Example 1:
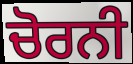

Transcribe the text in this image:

ਚੋਰਨੀ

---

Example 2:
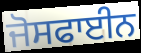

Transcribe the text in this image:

ਜੋਸਫਾਈਨ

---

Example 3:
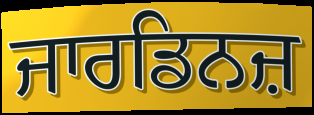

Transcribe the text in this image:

ਜਾਰਡਿਨਜ਼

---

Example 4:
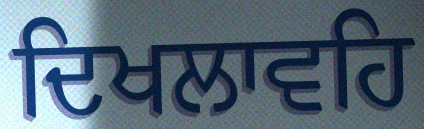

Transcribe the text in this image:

ਦਿਖਲਾਵਹਿ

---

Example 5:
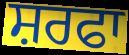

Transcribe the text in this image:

ਸ਼ਰਫਾ